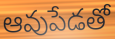
ఆవుపేడతో